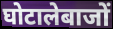
घोटालेबाजों